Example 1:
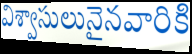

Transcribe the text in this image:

విశ్వాసులునైనవారికి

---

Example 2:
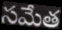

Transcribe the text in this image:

సమేత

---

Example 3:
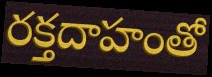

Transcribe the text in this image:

రక్తదాహంతో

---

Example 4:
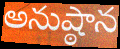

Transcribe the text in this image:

అనుష్ఠాన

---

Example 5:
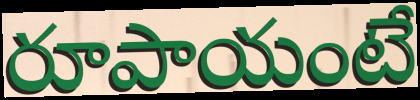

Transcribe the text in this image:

రూపాయంటే